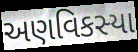
અણવિકસ્યા